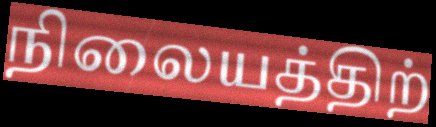
நிலையத்திற்